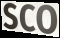
sco